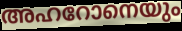
അഹറോനെയും